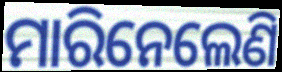
ମାରିନେଲେଣି